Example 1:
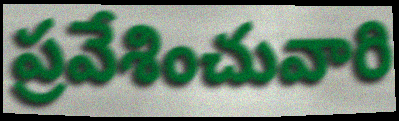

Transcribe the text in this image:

ప్రవేశించువారి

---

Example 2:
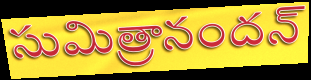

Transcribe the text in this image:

సుమిత్రానందన్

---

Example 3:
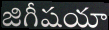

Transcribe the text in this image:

జిగీషయా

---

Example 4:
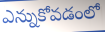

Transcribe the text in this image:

ఎన్నుకోవడంలో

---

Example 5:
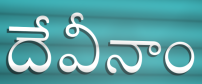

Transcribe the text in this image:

దేవీనాం